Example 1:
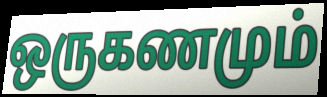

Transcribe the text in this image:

ஒருகணமும்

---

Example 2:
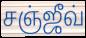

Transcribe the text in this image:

சஞ்ஜீவ்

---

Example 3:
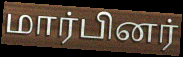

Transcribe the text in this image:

மார்பினர்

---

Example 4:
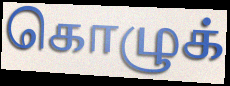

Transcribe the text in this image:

கொழுக்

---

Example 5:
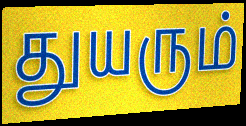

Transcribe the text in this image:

துயரும்